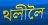
থলীলৈ